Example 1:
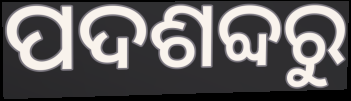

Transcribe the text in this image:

ପଦଶବ୍ଦରୁ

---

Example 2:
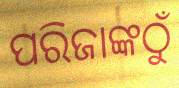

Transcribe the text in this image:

ପରିଜାଙ୍କଠୁଁ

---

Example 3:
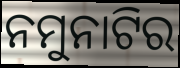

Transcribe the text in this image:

ନମୁନାଟିର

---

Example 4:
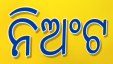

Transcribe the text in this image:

ନିଅଂଟ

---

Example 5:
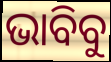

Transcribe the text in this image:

ଭାବିବୁ